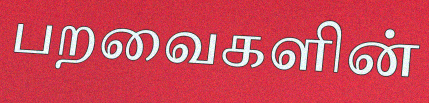
பறவைகளின்